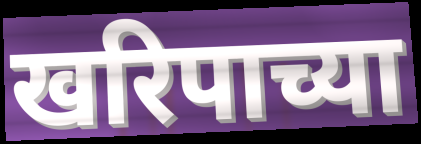
खरिपाच्या